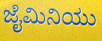
ಜೈಮಿನಿಯು